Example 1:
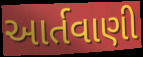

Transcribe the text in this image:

આર્તવાણી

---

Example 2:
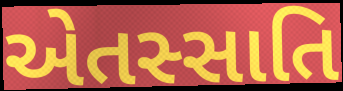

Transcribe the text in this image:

એતસ્સાતિ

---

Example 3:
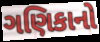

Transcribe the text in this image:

ગણિકાનો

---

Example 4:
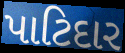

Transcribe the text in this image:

પાટિદાર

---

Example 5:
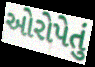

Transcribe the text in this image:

ઓરોપેતું